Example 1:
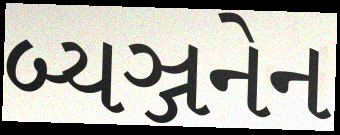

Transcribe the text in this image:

બ્યઞ્જનેન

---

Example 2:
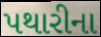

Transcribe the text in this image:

પથારીના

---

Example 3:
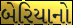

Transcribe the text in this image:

બેરિયાનો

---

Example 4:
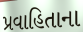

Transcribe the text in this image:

પ્રવાહિતાના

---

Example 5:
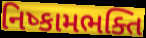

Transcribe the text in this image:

નિષ્કામભક્તિ